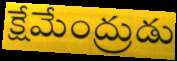
క్షేమేంద్రుడు